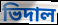
ভিদাল